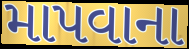
માપવાના